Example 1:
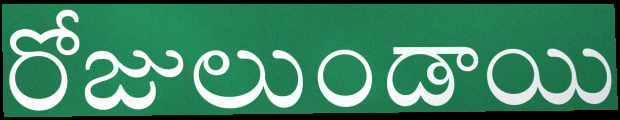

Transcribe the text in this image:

రోజులుండాయి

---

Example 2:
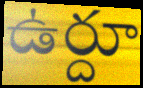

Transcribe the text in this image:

ఉర్దూ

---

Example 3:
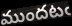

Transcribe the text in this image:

ముందటఁ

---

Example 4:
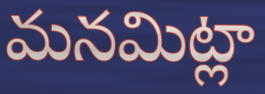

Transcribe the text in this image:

మనమిట్లా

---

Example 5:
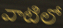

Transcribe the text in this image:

వాటిలో